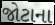
જોટાના